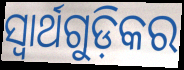
ସ୍ୱାର୍ଥଗୁଡ଼ିକର